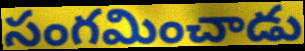
సంగమించాడు